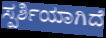
ಸ್ಪರ್ಶಿಯಾಗಿದೆ